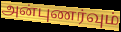
அன்புணர்வும்